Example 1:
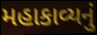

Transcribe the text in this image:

મહાકાવ્યનું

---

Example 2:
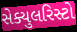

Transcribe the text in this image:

સેક્યુલરિસ્ટો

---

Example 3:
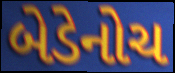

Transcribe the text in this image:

બેડેનોચ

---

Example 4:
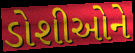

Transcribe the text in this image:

ડોશીઓને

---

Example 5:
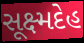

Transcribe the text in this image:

સૂક્ષ્મદેહ